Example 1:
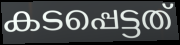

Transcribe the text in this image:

കടപ്പെട്ടത്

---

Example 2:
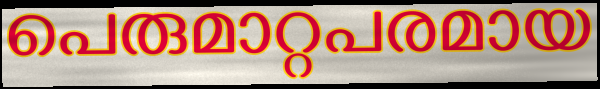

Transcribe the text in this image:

പെരുമാറ്റപരമായ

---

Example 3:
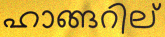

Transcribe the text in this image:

ഹാങ്ങറില്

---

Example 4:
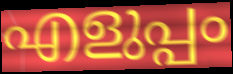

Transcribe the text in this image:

എളുപ്പം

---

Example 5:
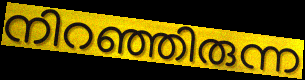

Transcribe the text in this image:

നിറഞ്ഞിരുന്ന